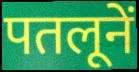
पतलूनें